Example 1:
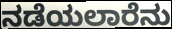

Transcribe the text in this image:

ನಡೆಯಲಾರೆನು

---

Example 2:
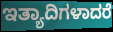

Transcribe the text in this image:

ಇತ್ಯಾದಿಗಳಾದರೆ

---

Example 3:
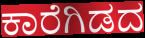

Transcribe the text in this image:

ಕಾರೆಗಿಡದ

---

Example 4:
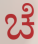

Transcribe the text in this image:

ಚೆ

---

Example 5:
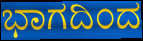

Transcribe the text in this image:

ಭಾಗದಿಂದ